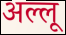
अल्लू